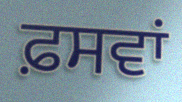
ਫ਼ਸਵਾਂ